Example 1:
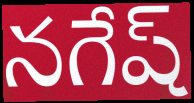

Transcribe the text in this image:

నగేష్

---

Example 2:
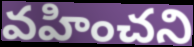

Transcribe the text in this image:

వహించని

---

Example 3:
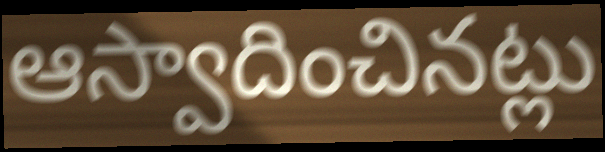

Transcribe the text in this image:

ఆస్వాదించినట్లు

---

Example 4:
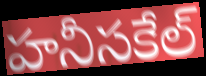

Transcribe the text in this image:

హనీసకేల్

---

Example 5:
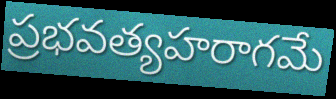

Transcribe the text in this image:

ప్రభవత్యహరాగమే